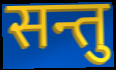
सन्‍तु